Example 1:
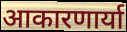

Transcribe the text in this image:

आकारणार्या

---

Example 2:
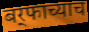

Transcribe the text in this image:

बर्फाच्याच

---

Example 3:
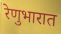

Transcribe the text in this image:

रेणुभारात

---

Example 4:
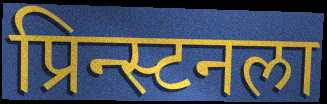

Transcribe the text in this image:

प्रिन्स्टनला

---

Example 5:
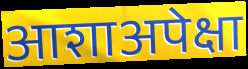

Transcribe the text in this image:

आशाअपेक्षा